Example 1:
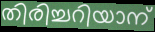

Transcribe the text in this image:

തിരിച്ചറിയാന്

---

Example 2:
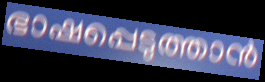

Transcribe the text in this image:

ഭാഷപ്പെടുത്താൻ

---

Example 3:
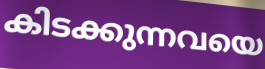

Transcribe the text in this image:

കിടക്കുന്നവയെ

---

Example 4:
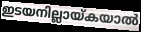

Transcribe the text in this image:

ഇടയനില്ലായ്കയാൽ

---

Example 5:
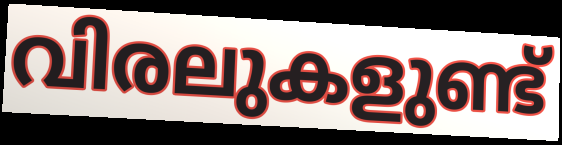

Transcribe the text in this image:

വിരലുകളുണ്ട്